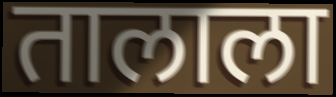
तालाला